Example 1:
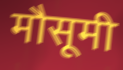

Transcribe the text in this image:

मौसूमी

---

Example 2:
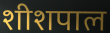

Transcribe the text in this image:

शीशपाल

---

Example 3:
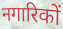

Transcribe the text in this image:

नगारिकों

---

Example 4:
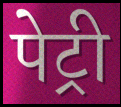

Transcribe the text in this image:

पेट्री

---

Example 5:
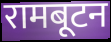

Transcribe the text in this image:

रामबूटन